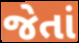
જેતાં